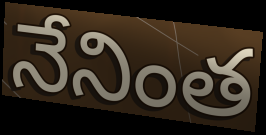
నేనింత